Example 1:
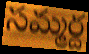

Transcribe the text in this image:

సమ్మర్ద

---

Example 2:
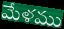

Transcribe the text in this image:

మేళము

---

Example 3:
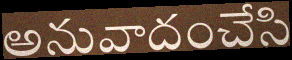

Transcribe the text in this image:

అనువాదంచేసి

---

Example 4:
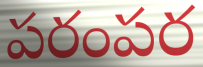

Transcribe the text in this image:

పరంపర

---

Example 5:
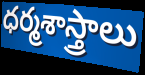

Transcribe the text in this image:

ధర్మశాస్త్రాలు